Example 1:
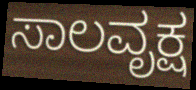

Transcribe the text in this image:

ಸಾಲವೃಕ್ಷ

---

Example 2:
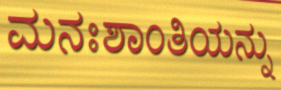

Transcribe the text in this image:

ಮನಃಶಾಂತಿಯನ್ನು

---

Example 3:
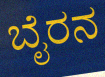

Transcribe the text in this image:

ಬೈರನ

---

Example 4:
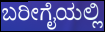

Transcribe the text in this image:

ಬರೀಗೈಯಲ್ಲಿ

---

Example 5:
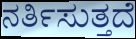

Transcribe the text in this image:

ನರ್ತಿಸುತ್ತದೆ